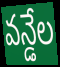
వన్డేల